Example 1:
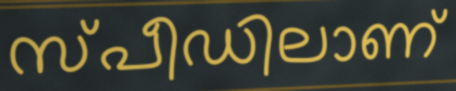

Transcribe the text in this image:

സ്പീഡിലാണ്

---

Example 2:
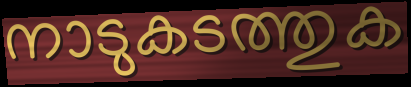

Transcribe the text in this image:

നാടുകടത്തുക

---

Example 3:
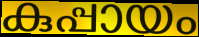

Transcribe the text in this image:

കുപ്പായം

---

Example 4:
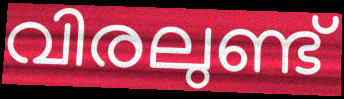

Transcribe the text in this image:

വിരലുണ്ട്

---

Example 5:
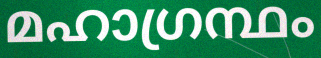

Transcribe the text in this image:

മഹാഗ്രന്ഥം